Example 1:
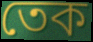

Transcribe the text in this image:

তেক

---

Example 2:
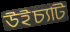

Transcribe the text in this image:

উইচ্যাট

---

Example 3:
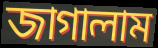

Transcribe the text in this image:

জাগালাম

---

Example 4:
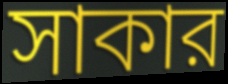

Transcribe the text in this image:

সাকার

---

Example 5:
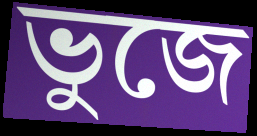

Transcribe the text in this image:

ভুজে